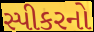
સ્પીકરનો